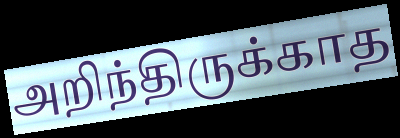
அறிந்திருக்காத